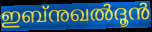
ഇബ്നുഖൽദൂൻ